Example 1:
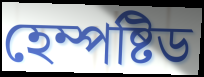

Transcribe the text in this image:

হেম্পষ্টিড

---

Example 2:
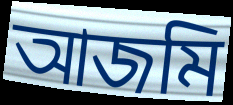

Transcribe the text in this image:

আজমি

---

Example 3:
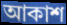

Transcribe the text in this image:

আকাশ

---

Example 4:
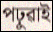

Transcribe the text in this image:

পঢ়ুৱাই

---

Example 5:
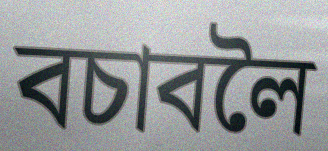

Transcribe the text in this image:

বচাবলৈ